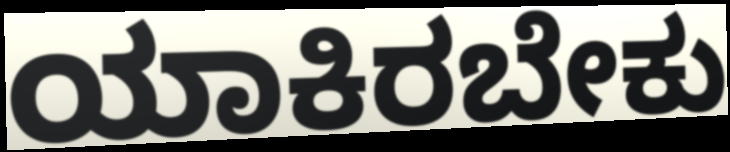
ಯಾಕಿರಬೇಕು